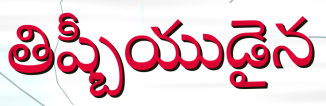
తిష్బీయుడైన